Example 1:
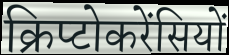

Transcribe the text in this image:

क्रिप्टोकरेंसियों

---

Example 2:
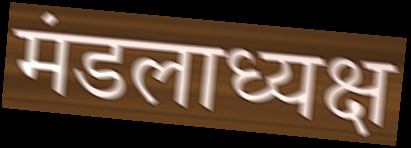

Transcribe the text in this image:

मंडलाध्यक्ष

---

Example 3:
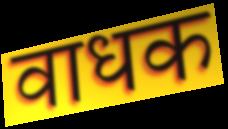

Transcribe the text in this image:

वाधक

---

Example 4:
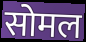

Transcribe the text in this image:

सोमल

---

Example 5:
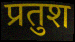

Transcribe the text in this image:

प्रतुश